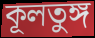
কূলতুঙ্গ